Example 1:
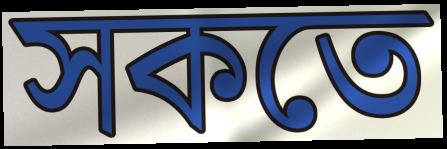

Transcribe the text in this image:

সকতে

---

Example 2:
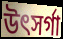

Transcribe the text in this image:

উৎসৰ্গা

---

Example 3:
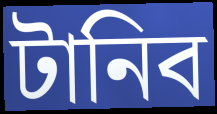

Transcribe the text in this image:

টানিব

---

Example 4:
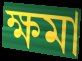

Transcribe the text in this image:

ক্ষমা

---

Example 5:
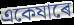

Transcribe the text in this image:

একেষাৰে